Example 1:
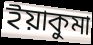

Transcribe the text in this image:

ইয়াকুমা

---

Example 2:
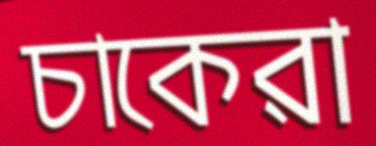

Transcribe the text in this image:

চাকেৱা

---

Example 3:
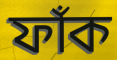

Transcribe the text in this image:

ফাঁক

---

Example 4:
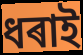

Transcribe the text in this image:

ধৰাই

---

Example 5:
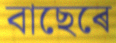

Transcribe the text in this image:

বাছেৰে